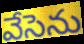
వేసెను